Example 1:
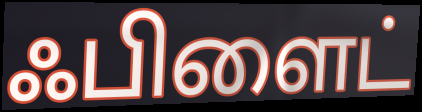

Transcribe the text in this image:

ஃபிளைட்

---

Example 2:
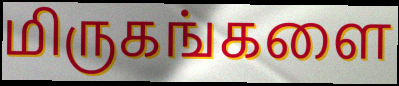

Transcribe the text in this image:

மிருகங்களை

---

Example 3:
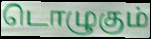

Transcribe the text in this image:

டொழுகும்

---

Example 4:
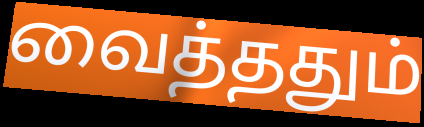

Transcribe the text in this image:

வைத்ததும்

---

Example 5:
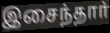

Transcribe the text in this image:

இசைந்தார்